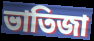
ভাতিজা